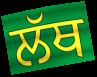
ਲੱਥ